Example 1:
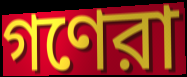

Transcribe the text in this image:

গণেরা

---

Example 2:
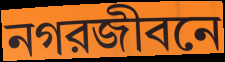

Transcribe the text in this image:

নগরজীবনে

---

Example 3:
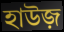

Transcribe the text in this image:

হাউজ়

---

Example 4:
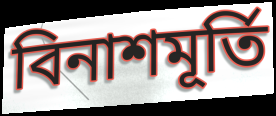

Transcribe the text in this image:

বিনাশমূর্তি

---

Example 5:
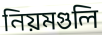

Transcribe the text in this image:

নিয়মগুলি